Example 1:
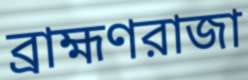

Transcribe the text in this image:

ব্রাহ্মণরাজা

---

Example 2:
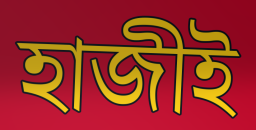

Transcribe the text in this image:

হাজীই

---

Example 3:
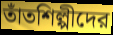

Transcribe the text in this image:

তাঁতশিল্পীদের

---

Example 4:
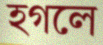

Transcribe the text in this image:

হগলে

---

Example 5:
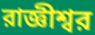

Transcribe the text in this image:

রাজ্ঞীশ্বর